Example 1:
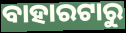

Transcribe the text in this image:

ବାହାରଟାରୁ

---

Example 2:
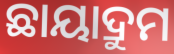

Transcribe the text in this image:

ଛାୟାଦ୍ରୁମ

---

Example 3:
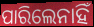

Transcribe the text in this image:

ପାରିଲେନାହିଁ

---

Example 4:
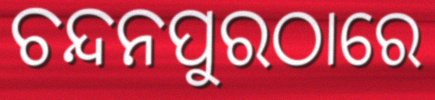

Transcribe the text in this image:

ଚନ୍ଦନପୁରଠାରେ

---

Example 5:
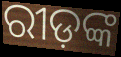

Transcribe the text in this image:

ରୀଡ଼ଙ୍କ